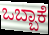
ಒಬ್ಬಾಕೆ